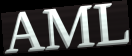
AML